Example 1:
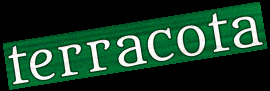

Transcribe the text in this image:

terracota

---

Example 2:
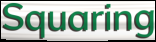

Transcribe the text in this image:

Squaring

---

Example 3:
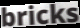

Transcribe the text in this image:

bricks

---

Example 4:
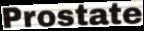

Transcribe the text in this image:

Prostate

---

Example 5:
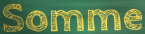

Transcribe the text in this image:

Somme